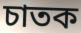
চাতক